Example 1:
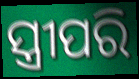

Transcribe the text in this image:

ସ୍ତ୍ରୀପରି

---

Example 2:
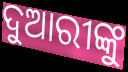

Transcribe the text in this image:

ଦୁଆରୀଙ୍କୁ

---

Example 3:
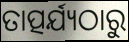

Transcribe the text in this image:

ତାତ୍ପର୍ଯ୍ୟଠାରୁ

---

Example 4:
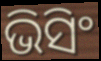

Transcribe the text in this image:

ଭିସିଂ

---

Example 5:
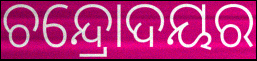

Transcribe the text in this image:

ଚନ୍ଦ୍ରୋଦୟର